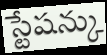
స్టేషన్కు